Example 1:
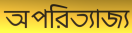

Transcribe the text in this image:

অপরিত্যাজ্য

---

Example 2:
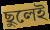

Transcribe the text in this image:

ছুলেই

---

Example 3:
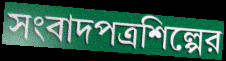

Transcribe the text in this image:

সংবাদপত্রশিল্পের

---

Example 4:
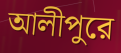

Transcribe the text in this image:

আলীপুরে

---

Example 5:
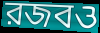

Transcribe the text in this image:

রজবও